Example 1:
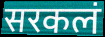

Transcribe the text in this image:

सरकलं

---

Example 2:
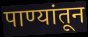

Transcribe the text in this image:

पाण्यांतून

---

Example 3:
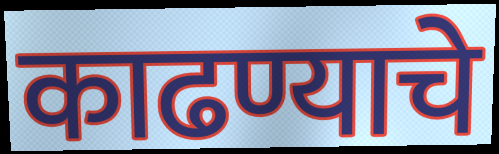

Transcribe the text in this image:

काढण्याचे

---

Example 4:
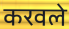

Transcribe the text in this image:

करवले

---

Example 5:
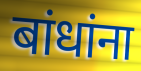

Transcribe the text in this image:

बांधांना